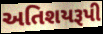
અતિશયરૂપી